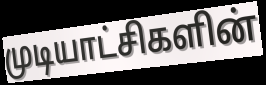
முடியாட்சிகளின்